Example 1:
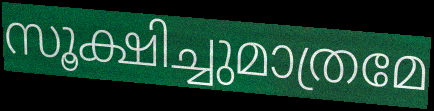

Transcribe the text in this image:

സൂക്ഷിച്ചുമാത്രമേ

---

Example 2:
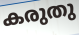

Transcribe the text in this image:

കരുതു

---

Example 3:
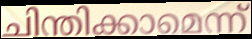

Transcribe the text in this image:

ചിന്തിക്കാമെന്ന്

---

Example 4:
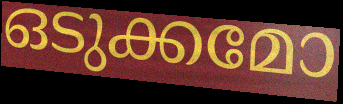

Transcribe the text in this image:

ഒടുക്കമോ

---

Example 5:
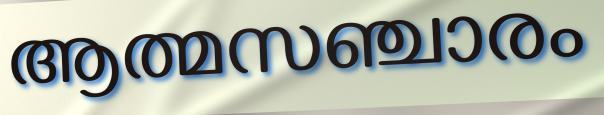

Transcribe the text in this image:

ആത്മസഞ്ചാരം